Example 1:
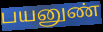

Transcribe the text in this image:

பயனுண்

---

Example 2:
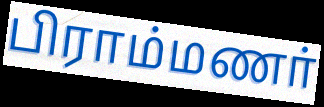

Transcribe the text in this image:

பிராம்மணர்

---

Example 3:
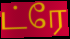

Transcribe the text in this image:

ட்ரே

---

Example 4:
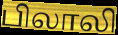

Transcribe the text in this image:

பிலாலி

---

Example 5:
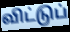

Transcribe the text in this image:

விட்டுப்